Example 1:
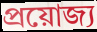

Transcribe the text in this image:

প্ৰয়োজ্য়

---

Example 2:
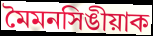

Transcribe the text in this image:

মৈমনসিঙীয়াক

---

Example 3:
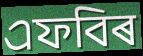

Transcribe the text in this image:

এফবিৰ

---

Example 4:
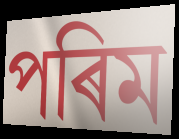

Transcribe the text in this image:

পৰিম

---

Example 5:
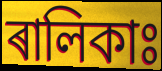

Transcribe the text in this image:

ৰালিকাঃ